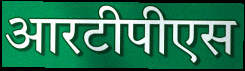
आरटीपीएस